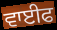
ਵਾਈਫ